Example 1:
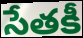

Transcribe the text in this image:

సేతకీ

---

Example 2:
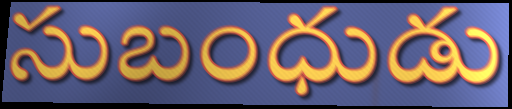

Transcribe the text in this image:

సుబంధుడు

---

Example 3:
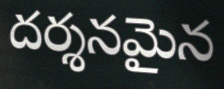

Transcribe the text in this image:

దర్శనమైన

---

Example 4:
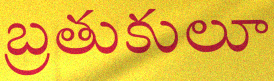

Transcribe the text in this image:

బ్రతుకులూ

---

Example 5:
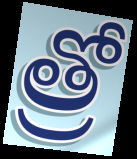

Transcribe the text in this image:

త్రో